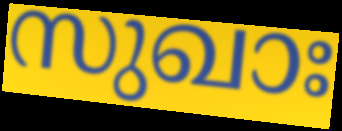
സുഖാഃ